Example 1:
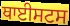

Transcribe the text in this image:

ਥਾਈਸਟਸ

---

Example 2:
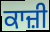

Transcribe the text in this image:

ਕਾਜ਼ੀ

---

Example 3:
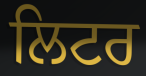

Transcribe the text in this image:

ਲਿਟਰ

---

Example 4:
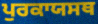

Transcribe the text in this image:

ਪੁਰਕਾਯਸਥ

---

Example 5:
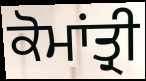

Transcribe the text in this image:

ਕੋਮਾਂਤ੍ਰੀ